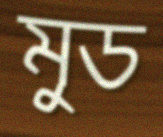
মুড